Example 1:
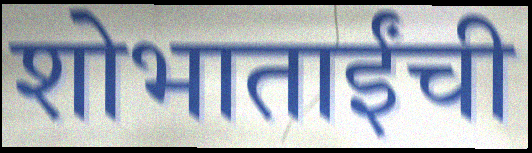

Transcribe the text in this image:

शोभाताईंची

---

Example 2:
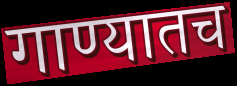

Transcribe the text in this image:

गाण्यातच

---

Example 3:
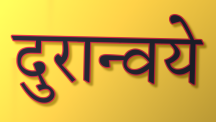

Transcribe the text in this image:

दुरान्वये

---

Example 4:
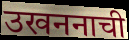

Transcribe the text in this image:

उखननाची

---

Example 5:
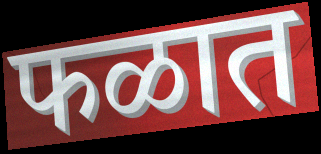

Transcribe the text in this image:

फळात